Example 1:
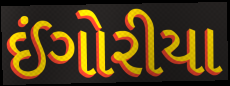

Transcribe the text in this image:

ઈંગોરીયા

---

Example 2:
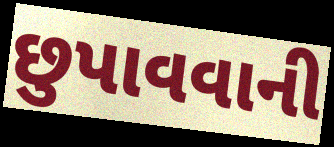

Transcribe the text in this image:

છુપાવવાની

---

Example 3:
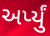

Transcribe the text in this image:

અર્પ્યું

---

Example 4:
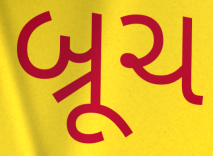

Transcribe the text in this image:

બ્રૂચ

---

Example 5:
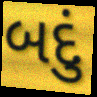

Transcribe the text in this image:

બદું